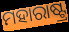
ମହାରାଷ୍ଟ୍ର